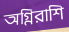
অগ্নিরাশি